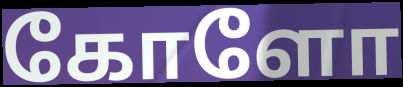
கோளோ